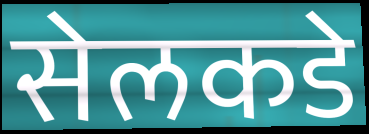
सेलकडे